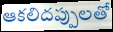
ఆకలిదప్పులతో